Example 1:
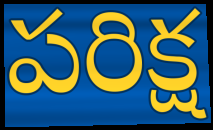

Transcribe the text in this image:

పరిక్ష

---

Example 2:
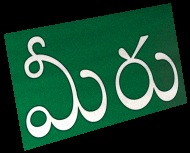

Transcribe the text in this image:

మీరు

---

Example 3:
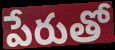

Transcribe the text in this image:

పేరుతో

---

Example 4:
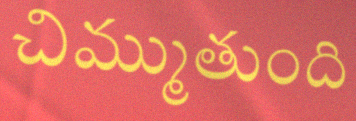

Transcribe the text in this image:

చిమ్ముతుంది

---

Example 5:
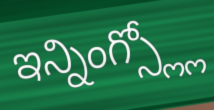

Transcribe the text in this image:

ఇన్నింగ్స్ల్లో